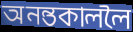
অনন্তকাললৈ